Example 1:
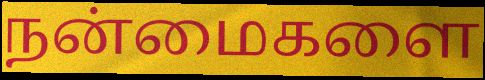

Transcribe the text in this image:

நன்மைகளை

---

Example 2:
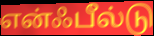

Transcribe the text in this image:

என்ஃபீல்டு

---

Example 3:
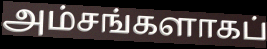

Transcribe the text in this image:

அம்சங்களாகப்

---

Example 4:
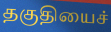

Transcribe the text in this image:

தகுதியைச்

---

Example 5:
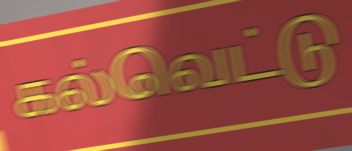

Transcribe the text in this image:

கல்வெட்டு